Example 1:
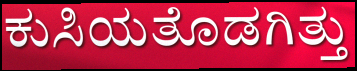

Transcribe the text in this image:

ಕುಸಿಯತೊಡಗಿತ್ತು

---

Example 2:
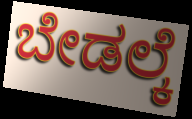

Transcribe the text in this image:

ಬೇಡಲ್ಕೆ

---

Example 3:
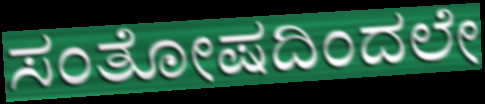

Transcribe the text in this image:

ಸಂತೋಷದಿಂದಲೇ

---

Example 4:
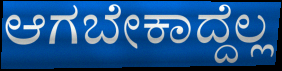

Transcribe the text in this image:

ಆಗಬೇಕಾದ್ದೆಲ್ಲ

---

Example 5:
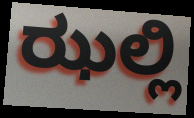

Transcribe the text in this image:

ಝಲ್ಲಿ